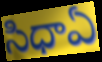
సిధాఏ